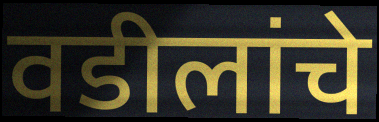
वडीलांचे